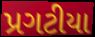
પ્રગટીયા